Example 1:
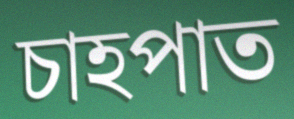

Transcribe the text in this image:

চাহপাত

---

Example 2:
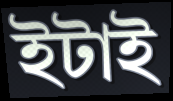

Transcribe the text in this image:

ইটাই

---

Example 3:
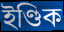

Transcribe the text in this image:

ইণ্ডিক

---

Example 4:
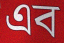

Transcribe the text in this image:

এব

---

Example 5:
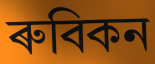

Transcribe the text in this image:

ৰুবিকন